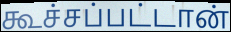
கூச்சப்பட்டான்